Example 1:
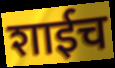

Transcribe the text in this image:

शाईच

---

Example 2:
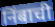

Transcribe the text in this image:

निंबाची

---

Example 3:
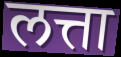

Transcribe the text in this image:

लत्ता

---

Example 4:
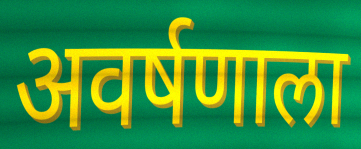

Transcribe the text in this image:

अवर्षणाला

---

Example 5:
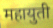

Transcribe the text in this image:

महायुती